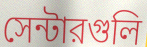
সেন্টারগুলি